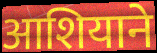
आशियाने